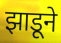
झाडूने